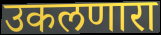
उकलणारा